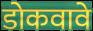
डोकवावे